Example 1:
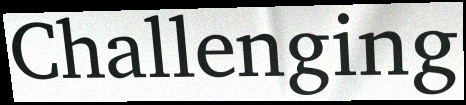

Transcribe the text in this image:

Challenging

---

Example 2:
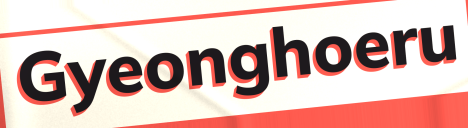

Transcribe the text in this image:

Gyeonghoeru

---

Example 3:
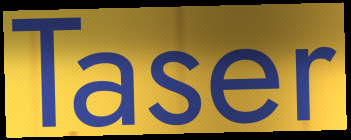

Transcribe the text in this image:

Taser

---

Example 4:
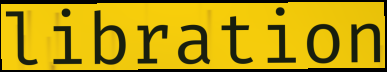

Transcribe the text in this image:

libration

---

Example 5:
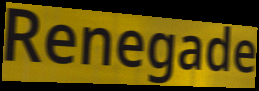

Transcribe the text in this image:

Renegade